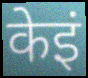
केइं